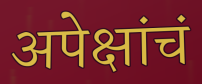
अपेक्षांचं